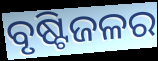
ବୃଷ୍ଟିଜଳର